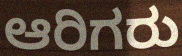
ಆರಿಗರು